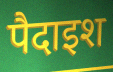
पैदाइश